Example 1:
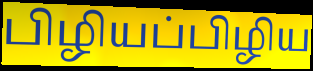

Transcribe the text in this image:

பிழியப்பிழிய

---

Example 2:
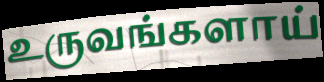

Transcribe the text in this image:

உருவங்களாய்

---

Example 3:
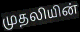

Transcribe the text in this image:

முதலியின்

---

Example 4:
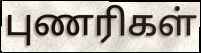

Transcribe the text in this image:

புணரிகள்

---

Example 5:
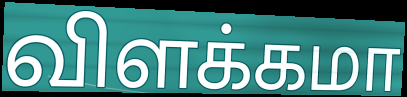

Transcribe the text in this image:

விளக்கமா